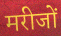
मरीजों